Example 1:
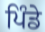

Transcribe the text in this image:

ਪਿੰਡੇ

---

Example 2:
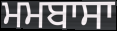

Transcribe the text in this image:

ਮਮਬਾਸਾ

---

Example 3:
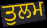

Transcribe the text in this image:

ਤੁਲਮ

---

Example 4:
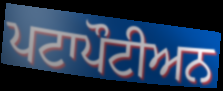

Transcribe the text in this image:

ਪਟਾਪੌਟੀਅਨ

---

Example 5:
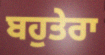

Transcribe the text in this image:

ਬਹੁਤੇਰਾ